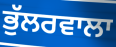
ਭੁੱਲਰਵਾਲਾ